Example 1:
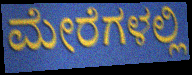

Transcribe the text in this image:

ಮೇರೆಗಳಲ್ಲಿ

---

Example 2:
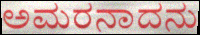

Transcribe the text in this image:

ಅಮರನಾದನು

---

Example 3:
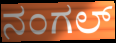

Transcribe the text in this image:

ನಂಗಲ್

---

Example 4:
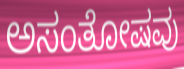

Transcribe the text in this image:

ಅಸಂತೋಷವು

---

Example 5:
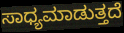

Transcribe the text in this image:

ಸಾಧ್ಯಮಾಡುತ್ತದೆ